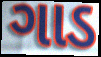
ગાડ